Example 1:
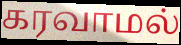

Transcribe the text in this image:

கரவாமல்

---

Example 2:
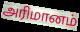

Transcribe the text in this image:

அரிமானம்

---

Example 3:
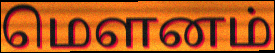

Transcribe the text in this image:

மெளனம்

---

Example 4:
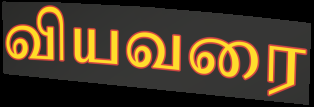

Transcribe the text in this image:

வியவரை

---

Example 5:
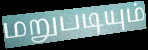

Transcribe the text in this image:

மறுபடியும்